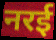
नरई